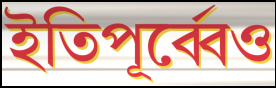
ইতিপূর্ব্বেও